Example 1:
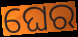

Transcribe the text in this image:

ଘେର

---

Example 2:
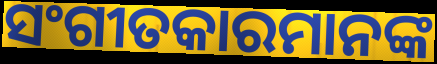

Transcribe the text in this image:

ସଂଗୀତକାରମାନଙ୍କ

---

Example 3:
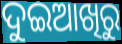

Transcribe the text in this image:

ଦୁଇଆଖିରୁ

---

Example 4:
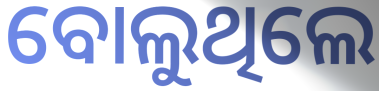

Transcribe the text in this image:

ବୋଲୁଥିଲେ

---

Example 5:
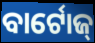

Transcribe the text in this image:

ବାର୍ଟୋଜ୍